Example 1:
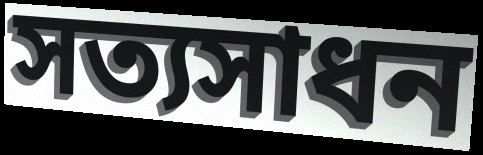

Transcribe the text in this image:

সত্যসাধন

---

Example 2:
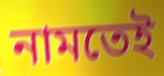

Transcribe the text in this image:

নামতেই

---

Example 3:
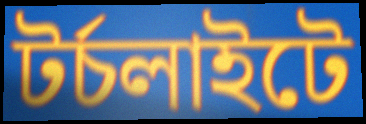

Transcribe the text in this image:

টর্চলাইটে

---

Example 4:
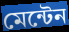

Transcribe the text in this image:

মেন্টেন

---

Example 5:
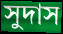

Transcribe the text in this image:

সুদাস